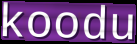
koodu